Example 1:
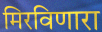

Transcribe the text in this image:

मिरविणारा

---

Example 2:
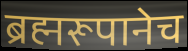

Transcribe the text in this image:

ब्रह्मरूपानेच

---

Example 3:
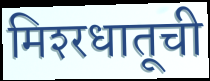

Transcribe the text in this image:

मिश्रधातूची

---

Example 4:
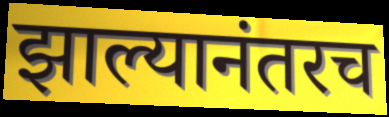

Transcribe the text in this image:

झाल्यानंतरच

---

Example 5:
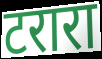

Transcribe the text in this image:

टरारा